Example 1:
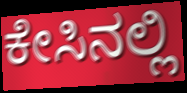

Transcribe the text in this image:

ಕೇಸಿನಲ್ಲಿ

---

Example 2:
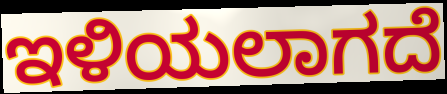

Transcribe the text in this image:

ಇಳಿಯಲಾಗದೆ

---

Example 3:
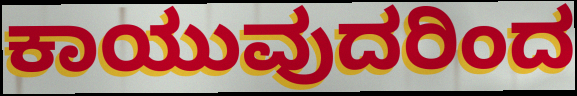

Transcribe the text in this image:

ಕಾಯುವುದರಿಂದ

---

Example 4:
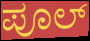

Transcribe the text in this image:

ಪೂಲ್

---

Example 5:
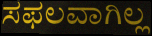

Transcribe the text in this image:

ಸಫಲವಾಗಿಲ್ಲ